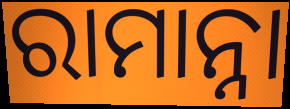
ରାମାନ୍ନା